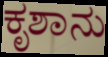
ಕೃಶಾನು